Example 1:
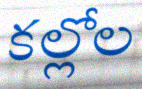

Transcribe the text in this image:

కల్లోల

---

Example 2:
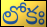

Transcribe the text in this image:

లోకః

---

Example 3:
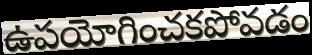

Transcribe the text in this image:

ఉపయోగించకపోవడం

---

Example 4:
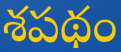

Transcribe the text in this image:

శపథం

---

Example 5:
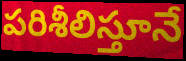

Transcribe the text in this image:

పరిశీలిస్తూనే